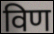
विण